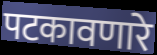
पटकावणारे